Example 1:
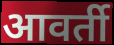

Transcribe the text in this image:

आवर्ती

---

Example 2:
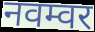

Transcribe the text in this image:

नवम्वर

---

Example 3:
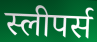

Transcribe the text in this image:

स्लीपर्स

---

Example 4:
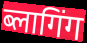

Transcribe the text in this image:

ब्लागिंग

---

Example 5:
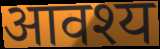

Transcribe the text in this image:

आवश्य